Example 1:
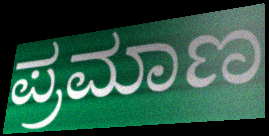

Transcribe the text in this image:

ಪ್ರಮಾಣ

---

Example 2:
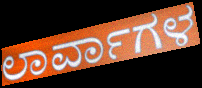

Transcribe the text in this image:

ಲಾರ್ವಾಗಳ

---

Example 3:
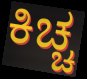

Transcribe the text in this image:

ಕಿಚ್ಚ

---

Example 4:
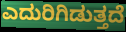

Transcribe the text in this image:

ಎದುರಿಗಿಡುತ್ತದೆ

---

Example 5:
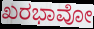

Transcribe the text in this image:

ಖರಭಾವೋ